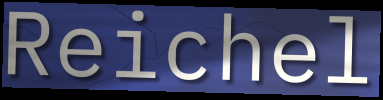
Reichel